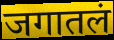
जगातलं